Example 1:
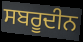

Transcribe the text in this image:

ਸਬਰੂਦੀਨ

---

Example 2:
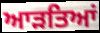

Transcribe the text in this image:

ਆੜਤਿਆਂ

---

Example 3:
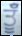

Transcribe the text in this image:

ਤੂੰਁ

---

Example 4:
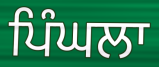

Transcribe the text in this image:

ਪਿੰਘਲਾ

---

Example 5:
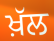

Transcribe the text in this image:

ਖ਼ੱਲ